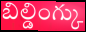
బిల్డింగ్కు